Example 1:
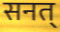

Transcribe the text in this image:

सनत्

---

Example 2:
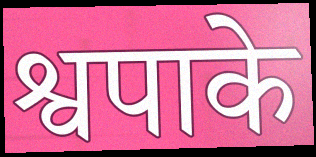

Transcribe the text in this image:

श्वपाके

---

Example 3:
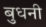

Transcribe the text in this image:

बुधनी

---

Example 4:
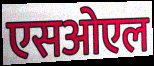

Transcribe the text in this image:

एसओएल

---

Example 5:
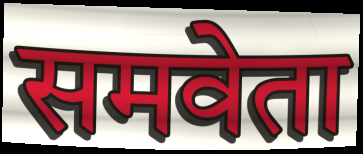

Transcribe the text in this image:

समवेता